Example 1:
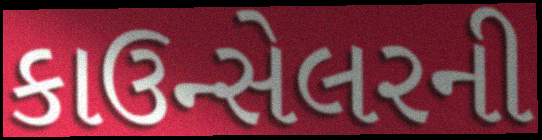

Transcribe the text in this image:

કાઉન્સેલરની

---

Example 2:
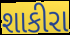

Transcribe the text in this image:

શાકીરા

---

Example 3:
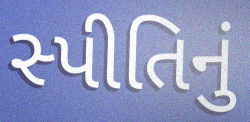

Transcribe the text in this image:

સ્પીતિનું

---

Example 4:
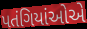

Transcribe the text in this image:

પતંગિયાંઓએ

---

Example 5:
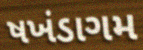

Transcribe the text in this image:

ષખંડાગમ